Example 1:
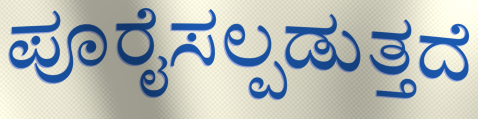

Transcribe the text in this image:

ಪೂರೈಸಲ್ಪಡುತ್ತದೆ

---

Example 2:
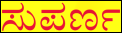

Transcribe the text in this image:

ಸುಪರ್ಣ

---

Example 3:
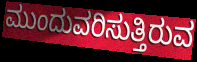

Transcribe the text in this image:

ಮುಂದುವರಿಸುತ್ತಿರುವ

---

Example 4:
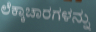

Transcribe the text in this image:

ಲೆಕ್ಕಾಚಾರಗಳನ್ನು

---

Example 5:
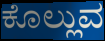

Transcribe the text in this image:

ಕೊಲ್ಲುವ